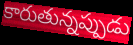
కారుతున్నప్పుడు